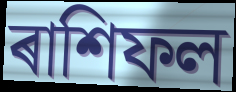
ৰাশিফল